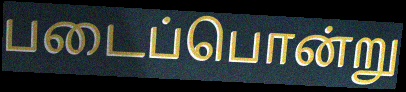
படைப்பொன்று